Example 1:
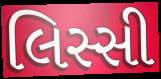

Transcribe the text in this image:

લિસ્સી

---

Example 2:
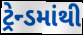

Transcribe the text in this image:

ટ્રેન્ડમાંથી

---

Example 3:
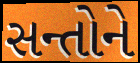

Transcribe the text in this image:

સન્તોને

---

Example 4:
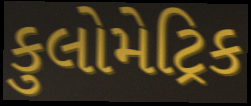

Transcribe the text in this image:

કુલોમેટ્રિક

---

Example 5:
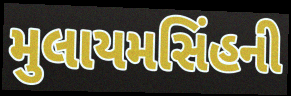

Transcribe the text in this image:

મુલાયમસિંહની